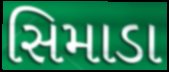
સિમાડા